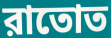
রাতোত